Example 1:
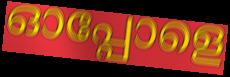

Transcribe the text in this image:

ഓപ്പോളെ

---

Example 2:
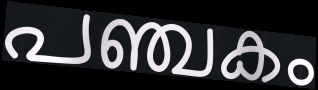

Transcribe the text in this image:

പഞ്ചകം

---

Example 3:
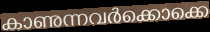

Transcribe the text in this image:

കാണുന്നവർക്കൊക്കെ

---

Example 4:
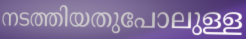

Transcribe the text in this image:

നടത്തിയതുപോലുള്ള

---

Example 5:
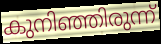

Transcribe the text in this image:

കുനിഞ്ഞിരുന്ന്